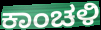
ಕಾಂಚಳಿ